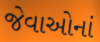
જેવાઓનાં